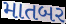
માતબર